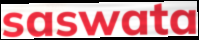
saswata